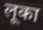
लूका